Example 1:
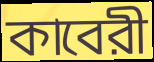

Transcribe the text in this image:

কাবেরী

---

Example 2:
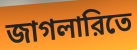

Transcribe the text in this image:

জাগলারিতে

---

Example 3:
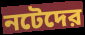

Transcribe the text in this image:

নটেদের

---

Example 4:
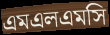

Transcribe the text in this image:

এমএলএমসি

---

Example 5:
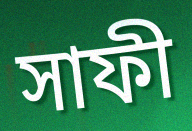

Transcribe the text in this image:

সাফী